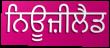
ਨਿਊਜ਼ੀਲੈਡ